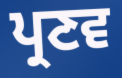
ਪ੍ਰਣਵ